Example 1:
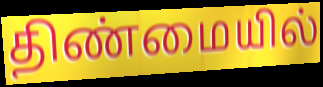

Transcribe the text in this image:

திண்மையில்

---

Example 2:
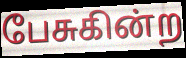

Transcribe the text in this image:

பேசுகின்ற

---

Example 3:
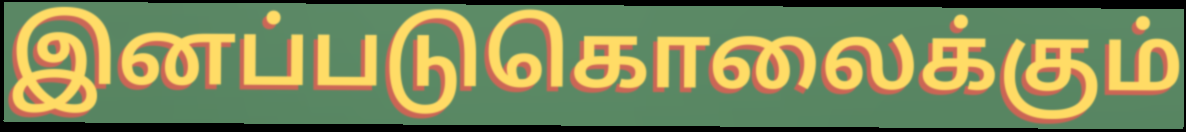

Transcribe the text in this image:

இனப்படுகொலைக்கும்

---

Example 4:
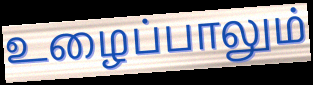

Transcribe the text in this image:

உழைப்பாலும்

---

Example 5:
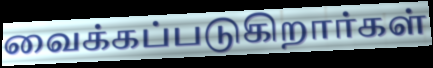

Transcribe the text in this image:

வைக்கப்படுகிறார்கள்